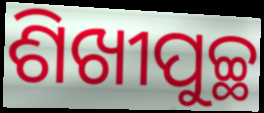
ଶିଖୀପୁଚ୍ଛ